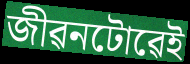
জীৱনটোৱেই